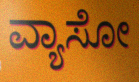
ವ್ಯಾಸೋ